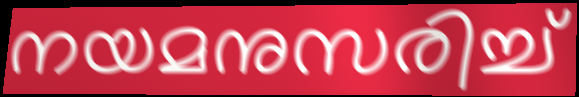
നയമനുസരിച്ച്